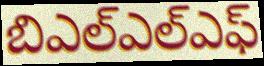
బిఎల్ఎల్ఎఫ్